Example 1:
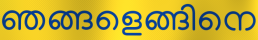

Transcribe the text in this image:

ഞങ്ങളെങ്ങിനെ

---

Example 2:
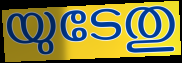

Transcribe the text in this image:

യുടേതു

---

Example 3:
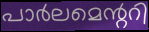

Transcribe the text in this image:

പാർലമെന്ററി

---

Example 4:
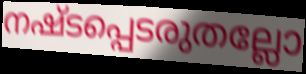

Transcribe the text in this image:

നഷ്ടപ്പെടരുതല്ലോ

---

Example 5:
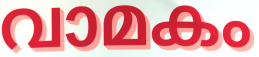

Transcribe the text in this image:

വാമകം